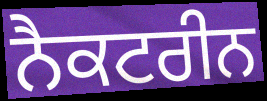
ਨੈਕਟਰੀਨ